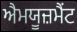
ਐਮਯੂਜ਼ਮੈਂਟ